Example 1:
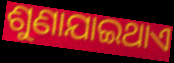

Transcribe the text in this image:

ଶୁଣାଯାଇଥାଏ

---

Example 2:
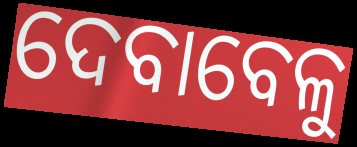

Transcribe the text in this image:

ଦେବାବେଳୁ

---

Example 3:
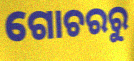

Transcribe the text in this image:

ଗୋଚରରୁ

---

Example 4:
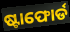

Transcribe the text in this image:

ଷ୍ଟାଫୋର୍ଡ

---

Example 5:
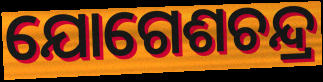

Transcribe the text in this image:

ଯୋଗେଶଚନ୍ଦ୍ର